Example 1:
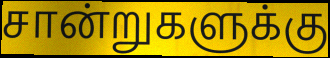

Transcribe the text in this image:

சான்றுகளுக்கு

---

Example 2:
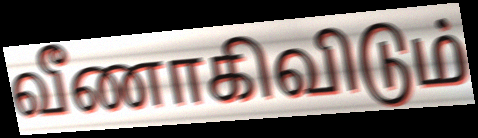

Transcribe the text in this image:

வீணாகிவிடும்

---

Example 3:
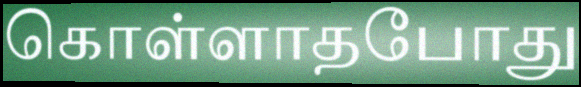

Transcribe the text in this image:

கொள்ளாதபோது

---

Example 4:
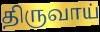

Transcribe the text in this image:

திருவாய்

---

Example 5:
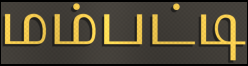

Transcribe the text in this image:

மம்பட்டி